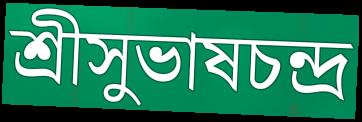
শ্রীসুভাষচন্দ্র